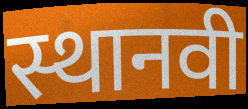
स्थानवी